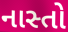
નાસ્તો